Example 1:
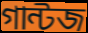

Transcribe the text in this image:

গান্টজ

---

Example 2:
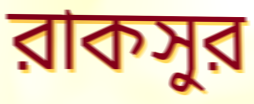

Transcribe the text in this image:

রাকসুর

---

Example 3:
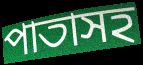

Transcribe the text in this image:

পাতাসহ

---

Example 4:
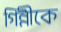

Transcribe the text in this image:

গিন্নীকে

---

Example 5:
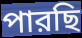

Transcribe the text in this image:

পারছি